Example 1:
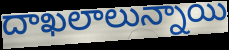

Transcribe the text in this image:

దాఖలాలున్నాయి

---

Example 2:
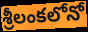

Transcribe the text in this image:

శ్రీలంకలోనో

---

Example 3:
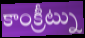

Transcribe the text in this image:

కాంక్రీట్ను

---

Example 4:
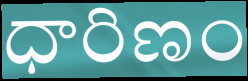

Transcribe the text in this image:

ధారిణం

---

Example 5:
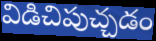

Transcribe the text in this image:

విడిచిపుచ్చడం